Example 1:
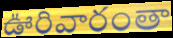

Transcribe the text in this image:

ఊరివారంతా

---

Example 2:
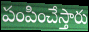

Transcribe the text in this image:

పంపించేస్తారు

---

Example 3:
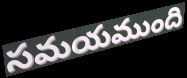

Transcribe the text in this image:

సమయముంది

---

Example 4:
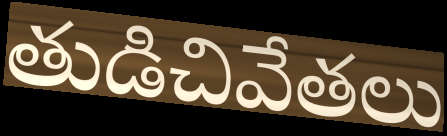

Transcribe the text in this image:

తుడిచివేతలు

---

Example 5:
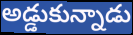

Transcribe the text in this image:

అడ్డుకున్నాడు